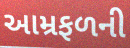
આમ્રફળની